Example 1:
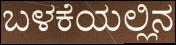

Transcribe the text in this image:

ಬಳಕೆಯಲ್ಲಿನ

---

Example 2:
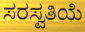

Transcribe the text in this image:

ಸರಸ್ವತಿಯೆ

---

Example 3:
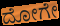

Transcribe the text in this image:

ದೋಗೇ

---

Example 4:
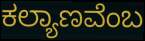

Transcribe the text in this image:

ಕಲ್ಯಾಣವೆಂಬ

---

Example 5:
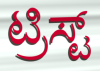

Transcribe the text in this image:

ಟ್ರಿಸ್ಟ್